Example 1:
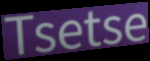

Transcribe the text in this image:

Tsetse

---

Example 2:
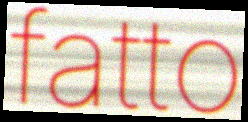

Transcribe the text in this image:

fatto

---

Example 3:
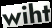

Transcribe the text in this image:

wiht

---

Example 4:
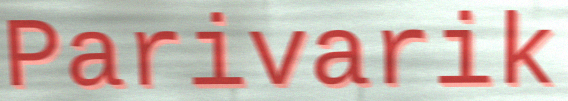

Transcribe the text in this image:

Parivarik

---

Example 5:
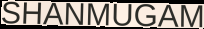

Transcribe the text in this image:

SHANMUGAM